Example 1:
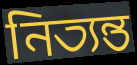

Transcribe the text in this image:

নিত্যন্ত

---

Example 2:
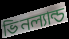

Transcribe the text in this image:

ভিনল্যান্ড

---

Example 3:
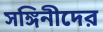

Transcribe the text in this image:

সঙ্গিনীদের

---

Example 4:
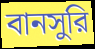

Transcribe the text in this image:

বানসুরি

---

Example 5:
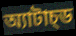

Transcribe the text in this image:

অ্যাটাচ্ড